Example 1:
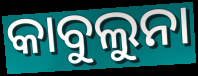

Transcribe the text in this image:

କାବୁଲୁନା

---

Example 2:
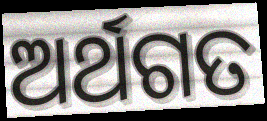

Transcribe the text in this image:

ଅର୍ଥଗତ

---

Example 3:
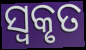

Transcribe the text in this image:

ସ୍ୱକୃତ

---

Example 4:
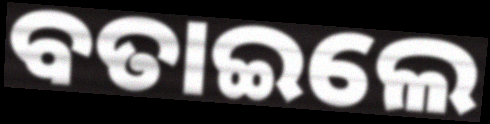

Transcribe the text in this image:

ବତାଇଲେ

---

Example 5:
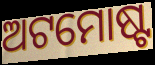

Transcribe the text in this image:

ଅଟମୋଷ୍ଟ